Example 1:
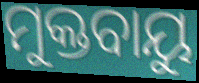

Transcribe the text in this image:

ମୁକ୍ତବାୟୁ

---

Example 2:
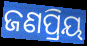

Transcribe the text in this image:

ଜଣପ୍ରିୟ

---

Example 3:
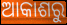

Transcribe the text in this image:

ଆକାଶରୁ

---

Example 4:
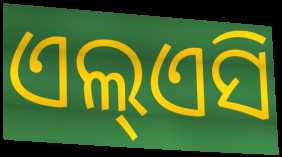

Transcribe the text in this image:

ଏଲ୍ଏସି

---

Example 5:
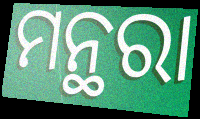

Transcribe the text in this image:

ମନ୍ଥରା